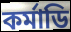
কর্মাডি